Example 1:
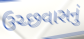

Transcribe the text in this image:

ઉચ્છવાસનું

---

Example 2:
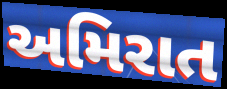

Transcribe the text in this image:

અમિરાત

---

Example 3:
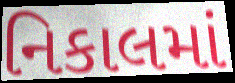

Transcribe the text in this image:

નિકાલમાં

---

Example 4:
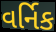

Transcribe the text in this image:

વર્નિક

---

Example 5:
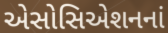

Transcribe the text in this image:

એસોસિએશનનાં